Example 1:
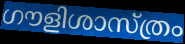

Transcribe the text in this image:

ഗൗളിശാസ്ത്രം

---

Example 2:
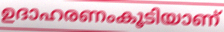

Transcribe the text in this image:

ഉദാഹരണംകൂടിയാണ്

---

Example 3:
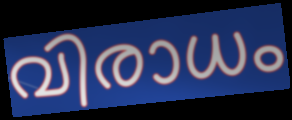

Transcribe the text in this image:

വിരാധം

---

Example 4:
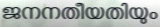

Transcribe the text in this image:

ജനനതീയതിയും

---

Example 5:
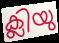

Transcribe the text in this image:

ക്ലിയു